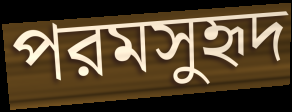
পরমসুহৃদ